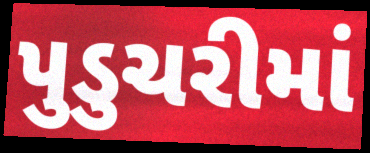
પુડુચરીમાં